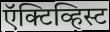
ऍक्टिव्हिस्ट